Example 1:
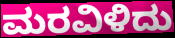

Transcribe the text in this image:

ಮರವಿಳಿದು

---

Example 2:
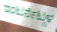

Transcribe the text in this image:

ಇಂಟರ್ನೆಟ್ಗಳ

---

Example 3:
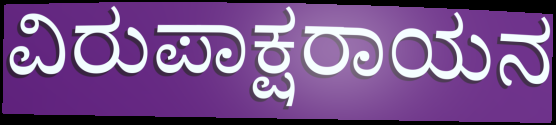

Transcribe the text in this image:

ವಿರುಪಾಕ್ಷರಾಯನ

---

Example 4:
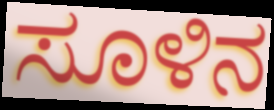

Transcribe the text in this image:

ಸೂಳಿನ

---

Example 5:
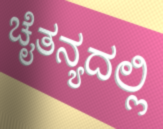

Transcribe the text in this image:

ಚೈತನ್ಯದಲ್ಲಿ